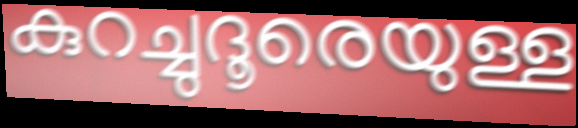
കുറച്ചുദൂരെയുള്ള